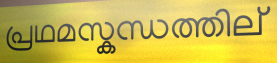
പ്രഥമസ്കന്ധത്തില്